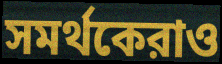
সমর্থকেরাও